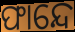
ଫାନ୍ଦେ